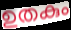
ഉതകും